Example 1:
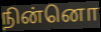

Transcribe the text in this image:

நின்னொ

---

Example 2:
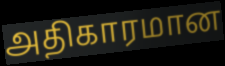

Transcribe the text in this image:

அதிகாரமான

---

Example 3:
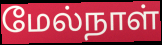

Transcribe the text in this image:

மேல்நாள்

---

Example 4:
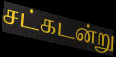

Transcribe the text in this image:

சட்கடன்று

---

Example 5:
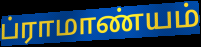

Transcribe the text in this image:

ப்ராமாண்யம்